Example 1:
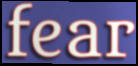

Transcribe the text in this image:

fear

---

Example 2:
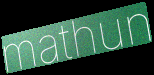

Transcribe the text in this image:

mathun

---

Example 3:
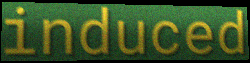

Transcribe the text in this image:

induced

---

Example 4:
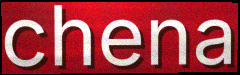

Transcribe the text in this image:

chena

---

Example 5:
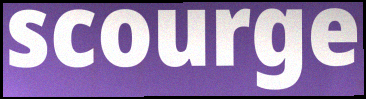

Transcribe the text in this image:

scourge